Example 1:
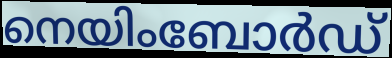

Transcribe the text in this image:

നെയിംബോർഡ്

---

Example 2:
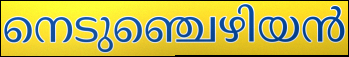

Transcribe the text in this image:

നെടുഞ്ചെഴിയൻ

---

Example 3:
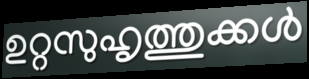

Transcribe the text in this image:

ഉറ്റസുഹൃത്തുക്കൾ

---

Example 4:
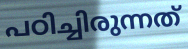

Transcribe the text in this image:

പഠിച്ചിരുന്നത്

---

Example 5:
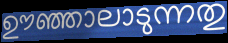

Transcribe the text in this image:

ഊഞ്ഞാലാടുന്നതു